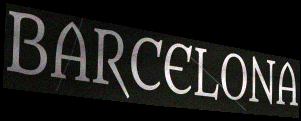
BARCELONA